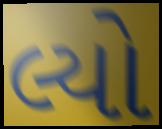
લ્યો